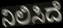
ನಿಲಿಸಿದೆ